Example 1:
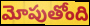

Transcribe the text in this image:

మోపుతోంది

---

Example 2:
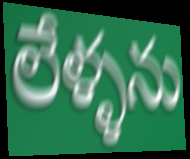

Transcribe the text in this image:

లేళ్ళను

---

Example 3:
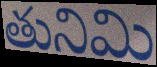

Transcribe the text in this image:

తునిమి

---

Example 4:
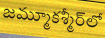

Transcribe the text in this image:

జమ్మూకశ్మీర్‌లో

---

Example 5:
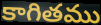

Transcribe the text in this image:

కాగితము